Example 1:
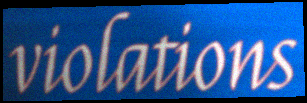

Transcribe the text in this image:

violations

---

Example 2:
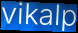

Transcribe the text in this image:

vikalp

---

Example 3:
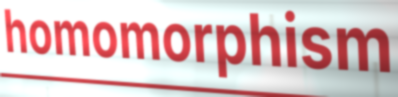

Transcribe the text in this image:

homomorphism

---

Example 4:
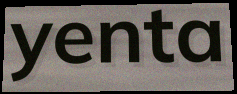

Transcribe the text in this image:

yenta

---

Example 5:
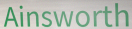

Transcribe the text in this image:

Ainsworth